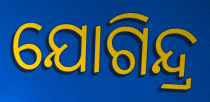
ଯୋଗିନ୍ଦ୍ର